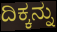
ದಿಕ್ಕನ್ನು